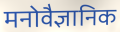
मनोवैज्ञानिक